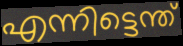
എന്നിട്ടെന്ത്